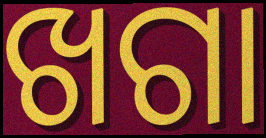
ଖଗା